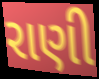
રાણી